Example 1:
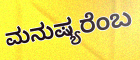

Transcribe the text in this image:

ಮನುಷ್ಯರೆಂಬ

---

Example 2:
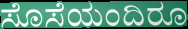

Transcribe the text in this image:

ಸೊಸೆಯಂದಿರೂ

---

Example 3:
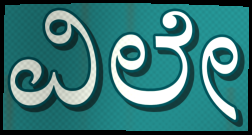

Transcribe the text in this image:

ವಿಲೇ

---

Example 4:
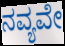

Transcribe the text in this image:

ನವ್ಯವೇ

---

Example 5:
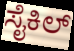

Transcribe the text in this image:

ಸೈಕಿಲ್